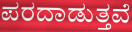
ಪರದಾಡುತ್ತವೆ